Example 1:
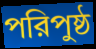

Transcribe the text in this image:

পরিপুষ্ঠ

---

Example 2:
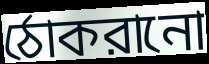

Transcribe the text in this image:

ঠোকরানো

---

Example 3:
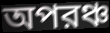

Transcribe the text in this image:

অপরঞ্চ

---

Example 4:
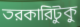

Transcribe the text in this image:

তরকারিটুকু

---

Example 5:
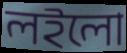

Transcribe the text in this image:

লইলো